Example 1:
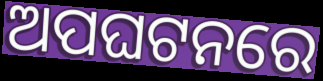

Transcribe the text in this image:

ଅପଘଟନରେ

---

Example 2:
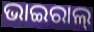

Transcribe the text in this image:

ଭାଇରାଲ୍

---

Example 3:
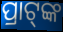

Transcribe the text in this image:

ପ୍ରାଟ୍‍ଙ୍କ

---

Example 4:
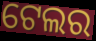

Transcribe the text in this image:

ଟେଲର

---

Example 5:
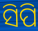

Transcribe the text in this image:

ସିପି